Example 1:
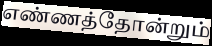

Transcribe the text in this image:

எண்ணத்தோன்றும்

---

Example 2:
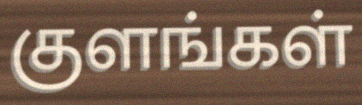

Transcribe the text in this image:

குளங்கள்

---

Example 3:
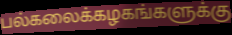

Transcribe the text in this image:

பல்கலைக்கழகங்களுக்கு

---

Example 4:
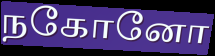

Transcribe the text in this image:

நகோனோ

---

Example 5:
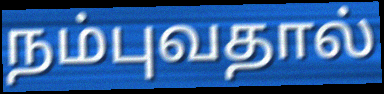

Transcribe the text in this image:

நம்புவதால்